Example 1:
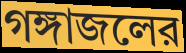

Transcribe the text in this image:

গঙ্গাজলের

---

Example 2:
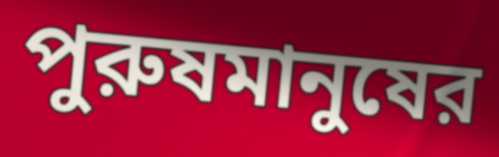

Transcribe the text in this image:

পুরুষমানুষের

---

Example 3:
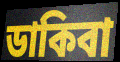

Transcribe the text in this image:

ডাকিবা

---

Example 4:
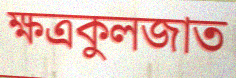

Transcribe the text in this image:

ক্ষত্রকুলজাত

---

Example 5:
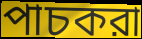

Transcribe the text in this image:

পাচকরা